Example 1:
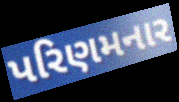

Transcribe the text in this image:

પરિણમનાર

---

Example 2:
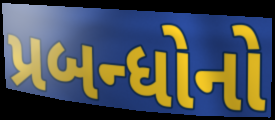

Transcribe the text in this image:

પ્રબન્ધોનો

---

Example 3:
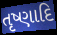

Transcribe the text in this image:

તૃષ્ણાદિ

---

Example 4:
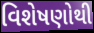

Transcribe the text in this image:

વિશેષણોથી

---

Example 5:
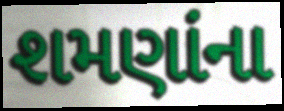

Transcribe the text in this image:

શમણાંના